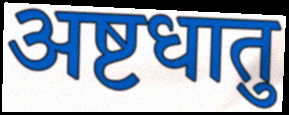
अष्टधातु